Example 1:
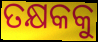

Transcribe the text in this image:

ତକ୍ଷକକୁ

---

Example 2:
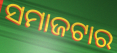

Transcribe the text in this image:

ସମାଜଟାର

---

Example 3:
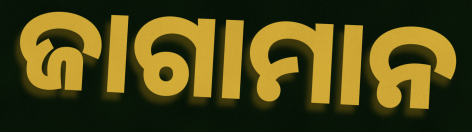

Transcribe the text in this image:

ଜାଗାମାନ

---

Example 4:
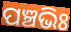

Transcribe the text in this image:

ପଞ୍ଚଭିଃ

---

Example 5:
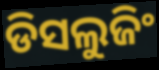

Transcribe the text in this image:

ଡିସଲୁଜିଂ